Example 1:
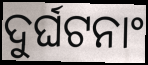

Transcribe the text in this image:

ଦୁର୍ଘଟନାଂ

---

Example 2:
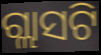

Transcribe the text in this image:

ଗ୍ଲାସଟି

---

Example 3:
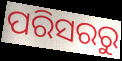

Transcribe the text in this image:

ପରିସରରୁ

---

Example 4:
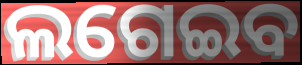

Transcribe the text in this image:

ଲଗେଇବ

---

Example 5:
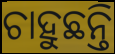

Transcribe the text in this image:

ଚାହୁଛନ୍ତି